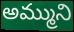
అమ్ముని